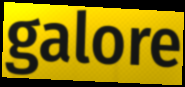
galore